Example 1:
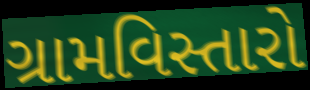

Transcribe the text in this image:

ગ્રામવિસ્તારો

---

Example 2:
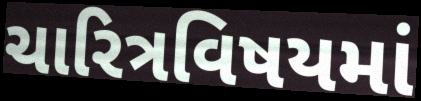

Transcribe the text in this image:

ચારિત્રવિષયમાં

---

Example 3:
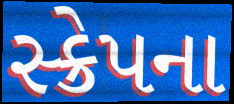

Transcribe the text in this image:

સ્ક્રેપના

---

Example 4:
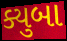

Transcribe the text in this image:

ક્યુબા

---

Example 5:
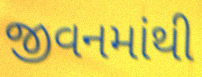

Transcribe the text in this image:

જીવનમાંથી